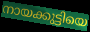
നായക്കുട്ടിയെ